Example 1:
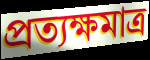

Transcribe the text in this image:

প্রত্যক্ষমাত্র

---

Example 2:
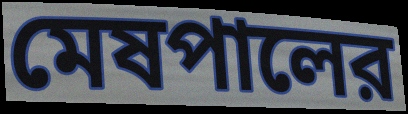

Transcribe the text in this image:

মেষপালের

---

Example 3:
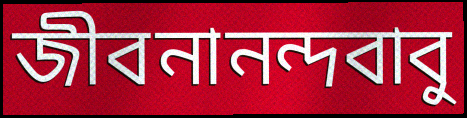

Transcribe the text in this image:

জীবনানন্দবাবু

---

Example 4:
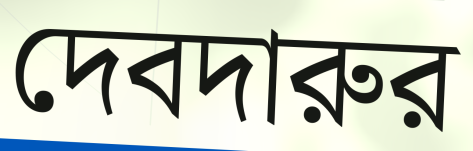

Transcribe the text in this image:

দেবদারুর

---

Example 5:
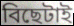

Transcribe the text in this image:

বিছেটাই